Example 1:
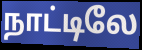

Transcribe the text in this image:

நாட்டிலே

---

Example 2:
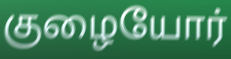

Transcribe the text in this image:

குழையோர்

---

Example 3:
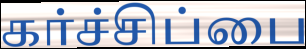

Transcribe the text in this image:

கர்ச்சிப்பை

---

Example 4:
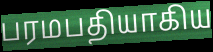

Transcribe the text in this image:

பரமபதியாகிய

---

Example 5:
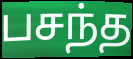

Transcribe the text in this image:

பசந்த